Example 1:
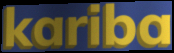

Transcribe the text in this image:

kariba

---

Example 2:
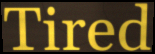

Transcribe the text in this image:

Tired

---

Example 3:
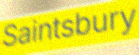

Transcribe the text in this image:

Saintsbury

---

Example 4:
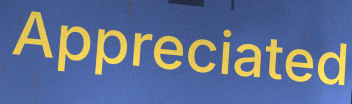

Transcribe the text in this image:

Appreciated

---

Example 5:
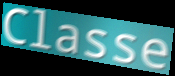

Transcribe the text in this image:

Classe